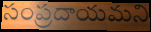
సంప్రదాయమని